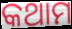
କଥାମ